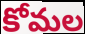
కోమల